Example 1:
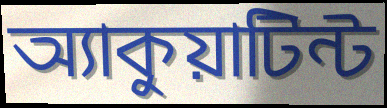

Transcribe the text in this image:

অ্যাকুয়াটিন্ট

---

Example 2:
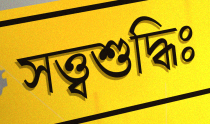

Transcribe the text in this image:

সত্ত্বশুদ্ধিঃ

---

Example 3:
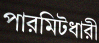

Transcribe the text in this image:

পারমিটধারী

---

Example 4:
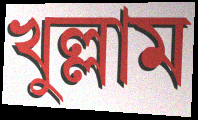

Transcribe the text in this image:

খুল্লাম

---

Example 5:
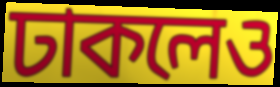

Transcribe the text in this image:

ঢাকলেও